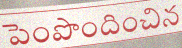
పెంపొందించిన